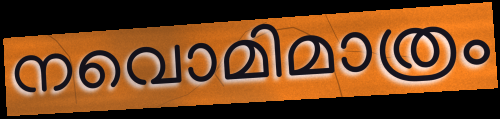
നവൊമിമാത്രം